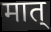
मात्